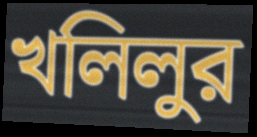
খলিলুর